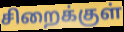
சிறைக்குள்